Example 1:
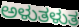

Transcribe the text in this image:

ಅಳುತಳುತ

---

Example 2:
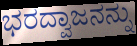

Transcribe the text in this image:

ಭರದ್ವಾಜನನ್ನು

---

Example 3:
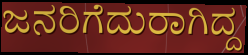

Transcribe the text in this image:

ಜನರಿಗೆದುರಾಗಿದ್ದ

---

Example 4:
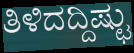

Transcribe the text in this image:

ತಿಳಿದದ್ದಿಷ್ಟು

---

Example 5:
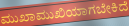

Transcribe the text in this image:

ಮುಖಾಮುಖಿಯಾಗಬೇಕಿದೆ